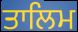
ਤਾਲਿਮ